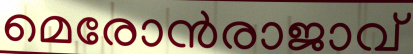
മെരോൻരാജാവ്